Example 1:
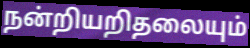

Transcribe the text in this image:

நன்றியறிதலையும்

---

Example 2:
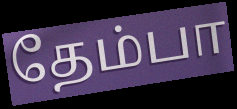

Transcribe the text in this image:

தேம்பா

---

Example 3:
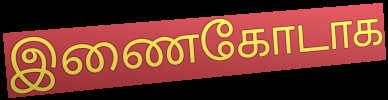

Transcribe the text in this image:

இணைகோடாக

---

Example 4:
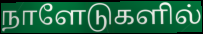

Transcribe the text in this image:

நாளேடுகளில்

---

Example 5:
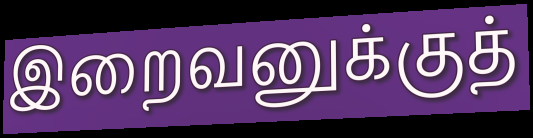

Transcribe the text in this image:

இறைவனுக்குத்